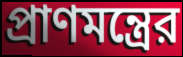
প্রাণমন্ত্রের